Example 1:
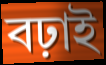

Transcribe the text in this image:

বঢ়াই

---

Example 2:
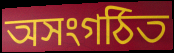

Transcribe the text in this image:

অসংগঠিত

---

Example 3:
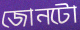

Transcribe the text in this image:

জোনটো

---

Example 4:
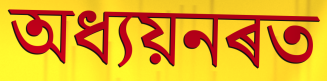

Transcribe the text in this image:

অধ্যয়নৰত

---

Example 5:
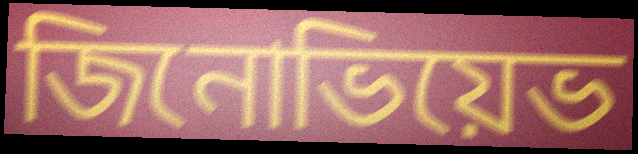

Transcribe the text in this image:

জিনোভিয়েভ